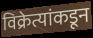
विक्रेत्यांकडून